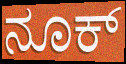
ನೂಕ್